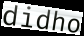
didho